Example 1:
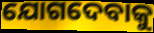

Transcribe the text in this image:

ଯୋଗଦେବାକୁ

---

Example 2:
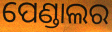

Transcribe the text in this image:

ପେଣ୍ଡାଲର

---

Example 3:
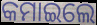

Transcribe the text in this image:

କମାଇଲେ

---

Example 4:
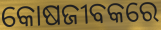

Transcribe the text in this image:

କୋଷଜୀବକରେ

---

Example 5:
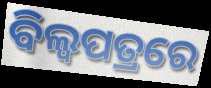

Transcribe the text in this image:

ବିଲ୍ଵପତ୍ରରେ